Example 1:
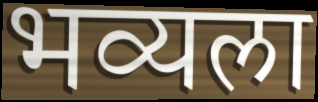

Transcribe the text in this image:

भव्यला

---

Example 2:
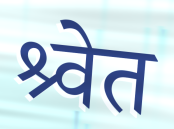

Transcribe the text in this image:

श्र्वेत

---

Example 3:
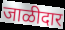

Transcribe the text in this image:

जाळीदार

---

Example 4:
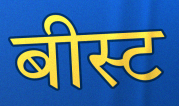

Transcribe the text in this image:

बीस्ट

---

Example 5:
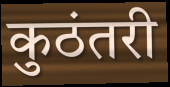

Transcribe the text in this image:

कुठंतरी